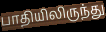
பாதியிலிருந்து